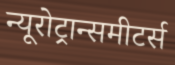
न्यूरोट्रान्समीटर्स